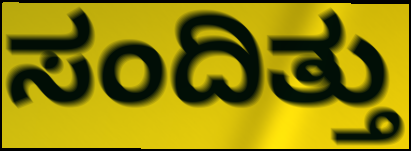
ಸಂದಿತ್ತು